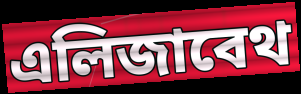
এলিজাবেথ